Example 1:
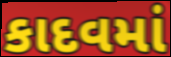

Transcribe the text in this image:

કાદવમાં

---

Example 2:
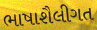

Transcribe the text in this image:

ભાષાશૈલીગત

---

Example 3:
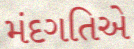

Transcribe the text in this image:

મંદગતિએ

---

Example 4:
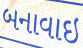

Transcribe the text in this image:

બનાવાઇ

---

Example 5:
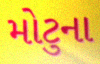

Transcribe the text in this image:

મોટુના